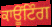
ਕਾਊਂਟਿੰਗ